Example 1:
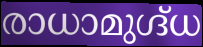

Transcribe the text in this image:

രാധാമുഗ്ദ്ധ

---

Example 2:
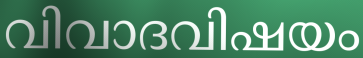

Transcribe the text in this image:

വിവാദവിഷയം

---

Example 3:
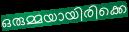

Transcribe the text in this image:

ഒരുമ്മയായിരിക്കെ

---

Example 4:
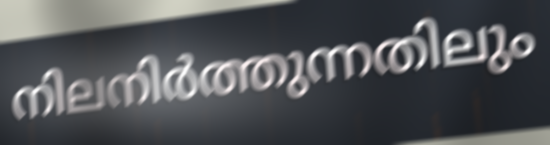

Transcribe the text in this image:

നിലനിർത്തുന്നതിലും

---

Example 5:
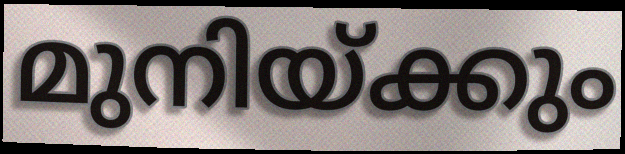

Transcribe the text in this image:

മുനിയ്ക്കും